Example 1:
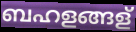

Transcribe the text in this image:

ബഹളങ്ങള്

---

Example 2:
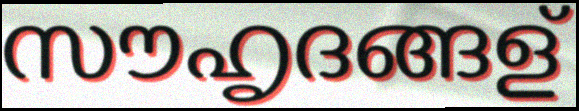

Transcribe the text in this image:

സൗഹൃദങ്ങള്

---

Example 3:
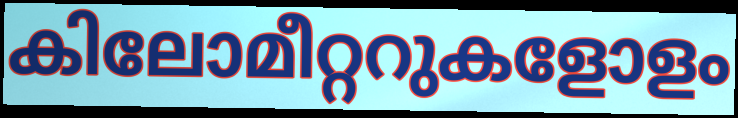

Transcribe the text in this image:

കിലോമീറ്ററുകളോളം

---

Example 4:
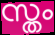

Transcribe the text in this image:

സ്തം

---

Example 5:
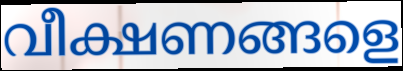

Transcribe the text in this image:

വീക്ഷണങ്ങളെ